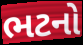
ભટનો